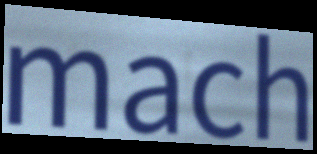
mach